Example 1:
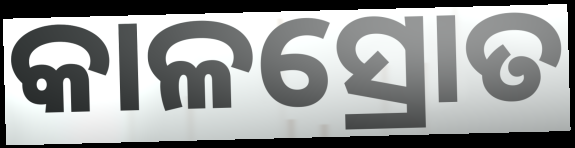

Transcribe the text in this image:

କାଳସ୍ରୋତ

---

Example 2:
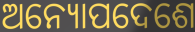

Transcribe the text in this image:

ଅନ୍ୟୋପଦେଶେ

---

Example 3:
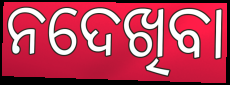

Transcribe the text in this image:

ନଦେଖିବା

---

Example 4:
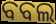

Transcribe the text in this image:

ବବଲ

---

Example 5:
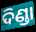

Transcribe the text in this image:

ଦିଣ୍ଡା